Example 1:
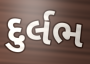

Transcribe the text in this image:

દુર્લભ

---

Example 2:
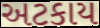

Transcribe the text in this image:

અટકાય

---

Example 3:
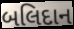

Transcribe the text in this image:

બલિદાન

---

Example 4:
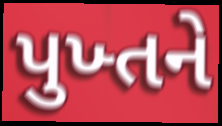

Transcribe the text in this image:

પુખ્તને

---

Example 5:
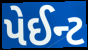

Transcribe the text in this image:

પેઈન્ટ